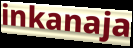
inkanaja